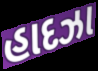
હાદઝા